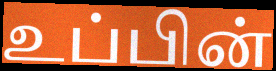
உப்பின்